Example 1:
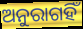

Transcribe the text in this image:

ଅନୁରାଗହିଁ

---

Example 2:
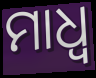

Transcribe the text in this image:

ମାଧ୍ଵ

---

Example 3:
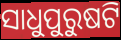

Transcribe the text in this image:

ସାଧୁପୁରୁଷଟି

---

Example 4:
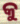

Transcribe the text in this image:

କୁ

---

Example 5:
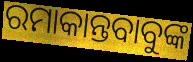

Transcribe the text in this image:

ରମାକାନ୍ତବାବୁଙ୍କ